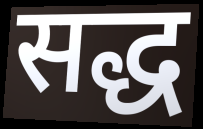
सद्ध